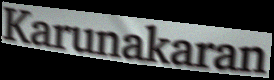
Karunakaran